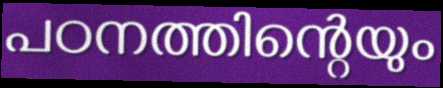
പഠനത്തിന്റെയും